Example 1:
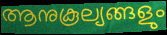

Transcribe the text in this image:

ആനുകൂല്യങ്ങളും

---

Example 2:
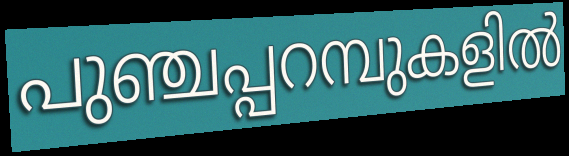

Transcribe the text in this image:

പുഞ്ചപ്പറമ്പുകളിൽ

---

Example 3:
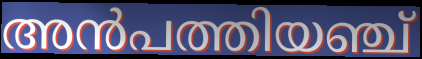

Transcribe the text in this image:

അൻപത്തിയഞ്ച്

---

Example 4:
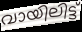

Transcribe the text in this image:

വായിലിട്ട്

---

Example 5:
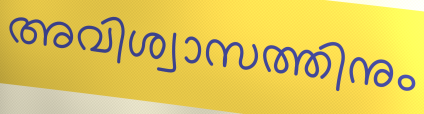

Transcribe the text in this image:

അവിശ്വാസത്തിനും